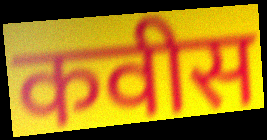
कवीस